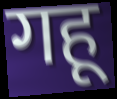
गहू